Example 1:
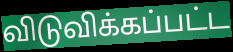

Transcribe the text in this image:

விடுவிக்கப்பட்ட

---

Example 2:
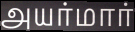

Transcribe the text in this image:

அயர்மார்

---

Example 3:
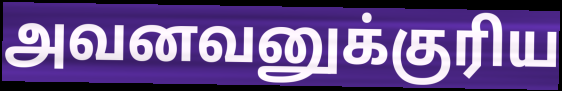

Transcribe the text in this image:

அவனவனுக்குரிய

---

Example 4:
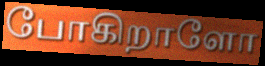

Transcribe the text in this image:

போகிறாளோ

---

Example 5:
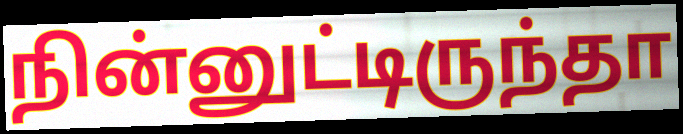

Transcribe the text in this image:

நின்னுட்டிருந்தா